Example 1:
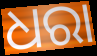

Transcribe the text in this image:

ଧରା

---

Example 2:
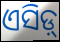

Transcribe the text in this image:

ଏସିଡ଼୍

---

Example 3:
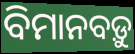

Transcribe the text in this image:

ବିମାନବଡ଼ୁ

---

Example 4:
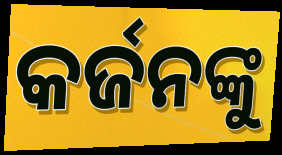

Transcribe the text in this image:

କର୍ଜନଙ୍କୁ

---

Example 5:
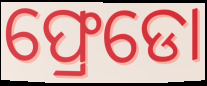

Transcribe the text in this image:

ଫ୍ରେଡୋ